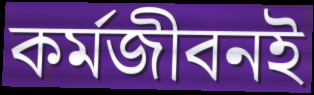
কর্মজীবনই